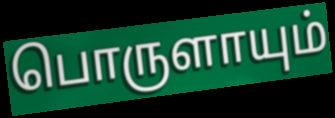
பொருளாயும்